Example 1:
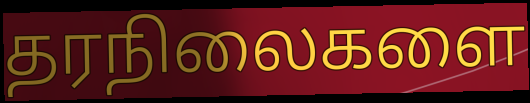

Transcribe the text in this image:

தரநிலைகளை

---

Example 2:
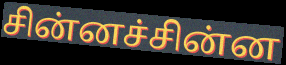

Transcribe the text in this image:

சின்னச்சின்ன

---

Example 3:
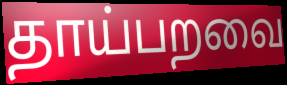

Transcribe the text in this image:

தாய்பறவை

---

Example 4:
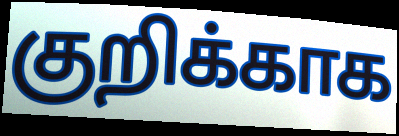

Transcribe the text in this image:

குறிக்காக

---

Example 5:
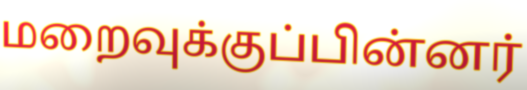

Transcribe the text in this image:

மறைவுக்குப்பின்னர்